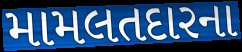
મામલતદારના